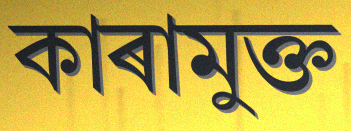
কাৰামুক্ত